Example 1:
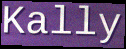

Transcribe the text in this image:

Kally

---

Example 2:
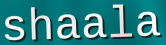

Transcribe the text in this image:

shaala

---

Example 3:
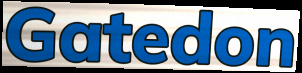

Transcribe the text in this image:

Gatedon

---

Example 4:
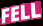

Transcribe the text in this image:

FELL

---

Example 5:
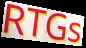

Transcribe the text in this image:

RTGs